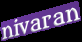
nivaran